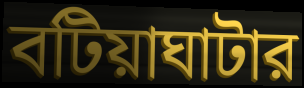
বটিয়াঘাটার